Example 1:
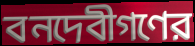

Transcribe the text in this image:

বনদেবীগণের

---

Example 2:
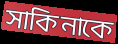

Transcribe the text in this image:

সাকিনাকে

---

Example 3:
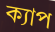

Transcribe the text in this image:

ক্যাপ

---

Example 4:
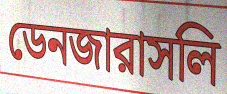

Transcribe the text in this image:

ডেনজারাসলি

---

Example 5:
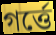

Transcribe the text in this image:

গর্ত্তে